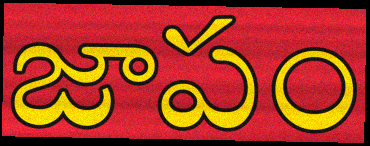
జాపం